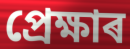
প্ৰেক্ষাৰ